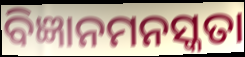
ବିଜ୍ଞାନମନସ୍କତା